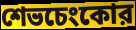
শেভচেংকোর